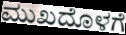
ಮುಖದೊಳಗೆ